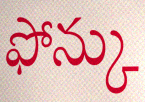
ఫోన్కు